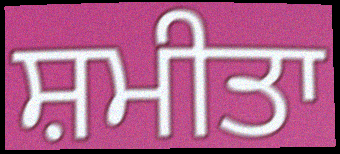
ਸ਼ਮੀਤਾ